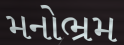
મનોભ્રમ